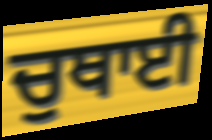
ਚੁਥਾਈ